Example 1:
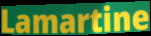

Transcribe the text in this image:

Lamartine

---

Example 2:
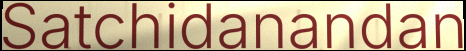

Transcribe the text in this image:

Satchidanandan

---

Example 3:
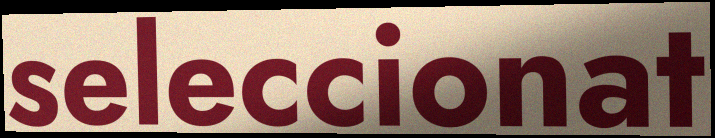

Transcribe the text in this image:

seleccionat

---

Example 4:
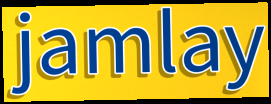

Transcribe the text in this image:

jamlay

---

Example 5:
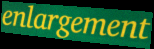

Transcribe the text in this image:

enlargement